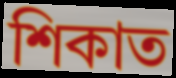
শিকাত